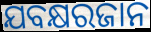
ଯବକ୍ଷରଜାନ